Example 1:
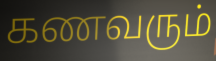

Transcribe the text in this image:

கணவரும்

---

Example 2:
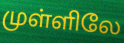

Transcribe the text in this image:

முள்ளிலே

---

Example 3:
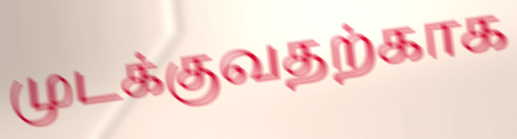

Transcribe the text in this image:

முடக்குவதற்காக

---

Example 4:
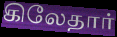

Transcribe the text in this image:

கிலேதார்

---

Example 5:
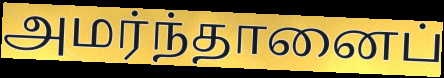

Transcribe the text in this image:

அமர்ந்தானைப்